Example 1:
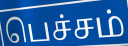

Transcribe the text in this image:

பெச்சம்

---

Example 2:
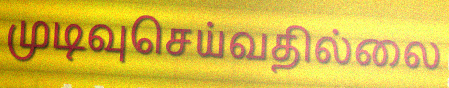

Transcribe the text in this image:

முடிவுசெய்வதில்லை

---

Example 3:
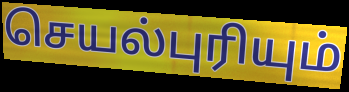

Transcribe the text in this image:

செயல்புரியும்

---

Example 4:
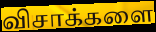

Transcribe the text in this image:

விசாக்களை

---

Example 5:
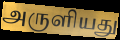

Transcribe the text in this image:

அருளியது